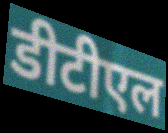
डीटीएल